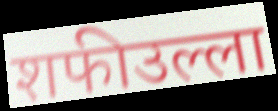
शफीउल्ला